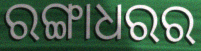
ରଙ୍ଗାଧରର